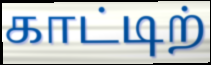
காட்டிற்